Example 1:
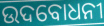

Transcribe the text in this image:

ଉଦବୋଧନୀ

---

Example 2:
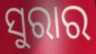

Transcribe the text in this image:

ସୁରାର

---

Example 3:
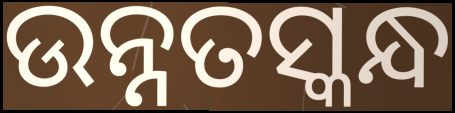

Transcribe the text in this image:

ଉନ୍ନତସ୍କନ୍ଧ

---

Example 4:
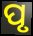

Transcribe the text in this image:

ପୃ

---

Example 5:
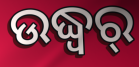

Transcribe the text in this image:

ଉଦ୍ଧ୍ୱର୍